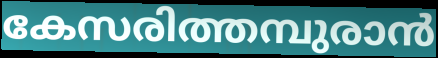
കേസരിത്തമ്പുരാൻ